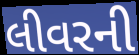
લીવરની